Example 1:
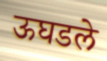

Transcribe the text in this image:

ऊघडले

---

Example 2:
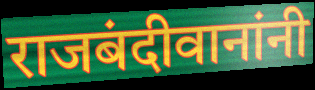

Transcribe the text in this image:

राजबंदीवानांनी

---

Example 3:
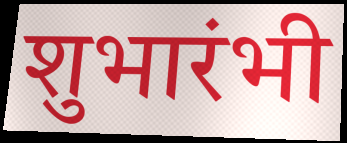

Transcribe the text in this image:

शुभारंभी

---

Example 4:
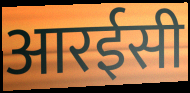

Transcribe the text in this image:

आरईसी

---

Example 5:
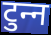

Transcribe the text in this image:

टुन्न